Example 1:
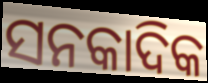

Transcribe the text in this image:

ସନକାଦିକ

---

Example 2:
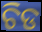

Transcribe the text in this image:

ଚିଡ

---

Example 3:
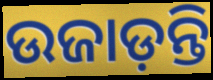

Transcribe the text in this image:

ଉଜାଡ଼ନ୍ତି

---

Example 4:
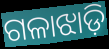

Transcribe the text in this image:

ଗଳାଝାଡ଼ି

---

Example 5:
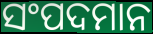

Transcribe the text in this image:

ସଂପଦମାନ